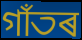
গাঁতৰ